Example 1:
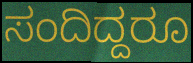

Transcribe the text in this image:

ಸಂದಿದ್ದರೂ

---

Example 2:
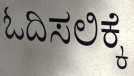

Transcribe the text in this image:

ಓದಿಸಲಿಕ್ಕೆ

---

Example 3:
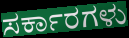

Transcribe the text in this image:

ಸರ್ಕಾರಗಳು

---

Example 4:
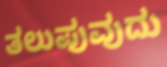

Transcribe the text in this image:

ತಲುಪುವುದು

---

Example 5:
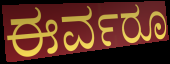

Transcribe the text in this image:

ಈರ್ವರೂ